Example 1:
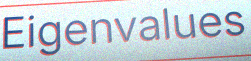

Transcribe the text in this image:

Eigenvalues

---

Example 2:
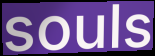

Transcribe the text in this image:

souls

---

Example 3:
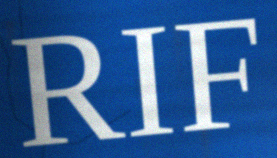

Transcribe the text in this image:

RIF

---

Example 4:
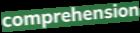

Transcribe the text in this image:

comprehension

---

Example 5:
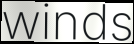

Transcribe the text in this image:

winds